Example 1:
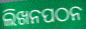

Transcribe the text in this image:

ଲିଖନପଠନ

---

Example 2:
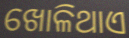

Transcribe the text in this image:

ଖୋଳିଥାଏ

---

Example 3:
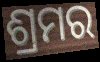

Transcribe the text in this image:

ଶ୍ରମର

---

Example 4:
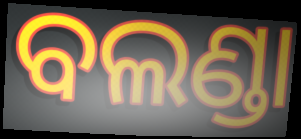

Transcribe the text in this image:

ବଲଣ୍ଡା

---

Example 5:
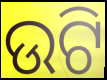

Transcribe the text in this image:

ଉଟି